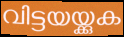
വിട്ടയയ്ക്കുക